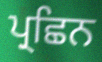
ਪ੍ਰਛਿਨ